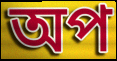
অপ